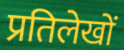
प्रतिलेखों